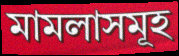
মামলাসমূহ